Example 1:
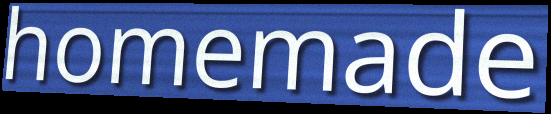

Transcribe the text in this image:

homemade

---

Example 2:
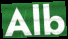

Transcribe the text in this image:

Alb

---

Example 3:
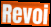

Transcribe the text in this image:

Revoi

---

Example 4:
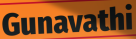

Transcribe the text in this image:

Gunavathi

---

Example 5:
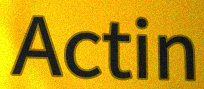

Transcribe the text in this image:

Actin